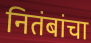
नितंबांचा